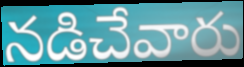
నడిచేవారు